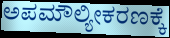
ಅಪಮೌಲ್ಯೀಕರಣಕ್ಕೆ